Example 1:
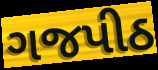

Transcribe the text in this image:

ગજપીઠ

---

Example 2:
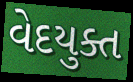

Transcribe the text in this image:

વેદયુક્ત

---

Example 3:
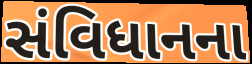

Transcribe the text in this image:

સંવિધાનના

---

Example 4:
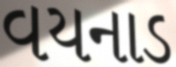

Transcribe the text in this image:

વયનાડ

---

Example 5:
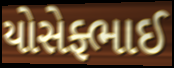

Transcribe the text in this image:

યોસેફ્ભાઈ